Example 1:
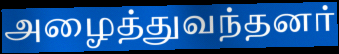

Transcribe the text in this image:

அழைத்துவந்தனர்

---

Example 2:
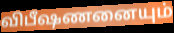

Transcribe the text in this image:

விபீஷணனையும்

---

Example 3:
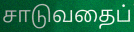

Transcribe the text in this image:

சாடுவதைப்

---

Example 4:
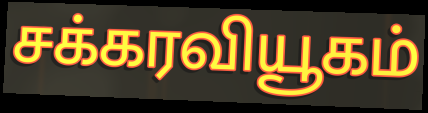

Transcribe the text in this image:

சக்கரவியூகம்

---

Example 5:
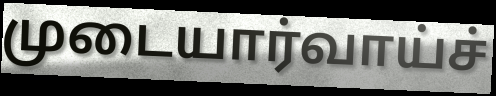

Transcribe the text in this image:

முடையார்வாய்ச்